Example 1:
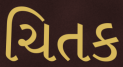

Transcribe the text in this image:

ચિતક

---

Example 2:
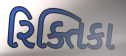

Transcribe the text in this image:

રિક્તિકા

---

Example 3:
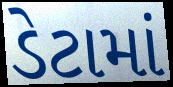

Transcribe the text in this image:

ડેટામાં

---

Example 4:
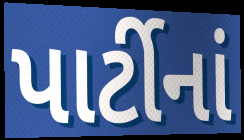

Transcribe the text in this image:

પાર્ટીનાં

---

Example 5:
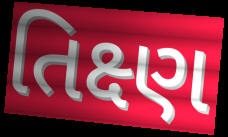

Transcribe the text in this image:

તિક્ષ્ણ